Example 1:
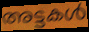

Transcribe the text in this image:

അട്ടകൾ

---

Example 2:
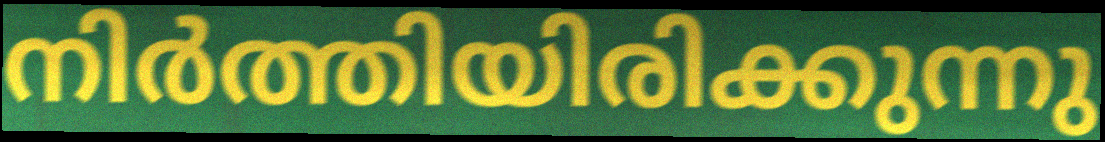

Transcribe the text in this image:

നിർത്തിയിരിക്കുന്നു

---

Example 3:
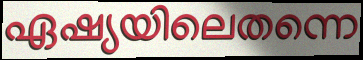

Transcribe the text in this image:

ഏഷ്യയിലെതന്നെ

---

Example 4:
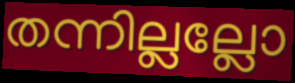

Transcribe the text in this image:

തന്നില്ലല്ലോ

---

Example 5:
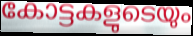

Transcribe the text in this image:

കോട്ടകളുടെയും